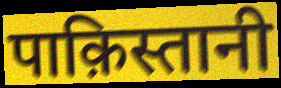
पाक़िस्तानी